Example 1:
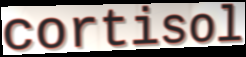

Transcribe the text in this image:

cortisol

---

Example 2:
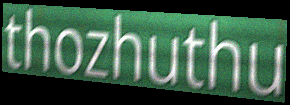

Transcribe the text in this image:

thozhuthu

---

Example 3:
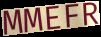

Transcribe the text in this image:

MMEFR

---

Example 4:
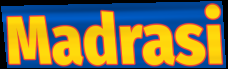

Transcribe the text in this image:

Madrasi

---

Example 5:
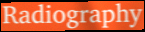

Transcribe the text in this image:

Radiography